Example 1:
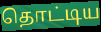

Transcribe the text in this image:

தொட்டிய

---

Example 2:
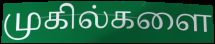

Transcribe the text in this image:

முகில்களை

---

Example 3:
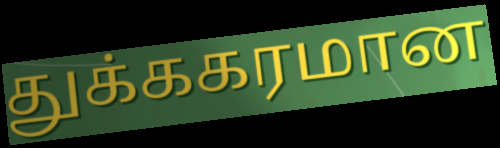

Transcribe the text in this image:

துக்ககரமான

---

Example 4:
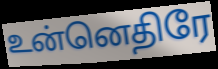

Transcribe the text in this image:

உன்னெதிரே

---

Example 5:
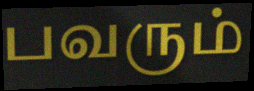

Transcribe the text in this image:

பவரும்